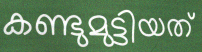
കണ്ടുമുട്ടിയത്